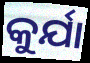
କୁର୍ଯା